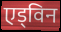
एड्विन